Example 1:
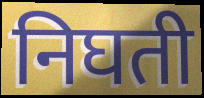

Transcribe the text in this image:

निघती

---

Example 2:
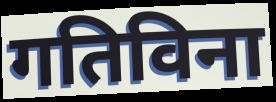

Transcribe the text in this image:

गतिविना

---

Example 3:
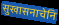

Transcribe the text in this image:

सुखासनाचेनि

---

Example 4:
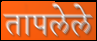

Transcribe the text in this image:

तापलेले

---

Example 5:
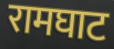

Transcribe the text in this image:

रामघाट